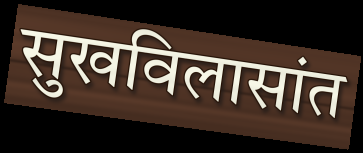
सुखविलासांत